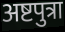
अष्टपुत्रा